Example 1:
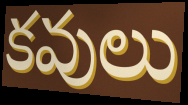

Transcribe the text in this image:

కవులు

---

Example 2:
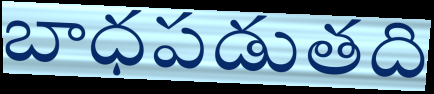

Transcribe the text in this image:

బాధపడుతది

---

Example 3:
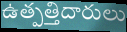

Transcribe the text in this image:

ఉత్పత్తిదారులు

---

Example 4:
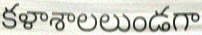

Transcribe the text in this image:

కళాశాలలుండగా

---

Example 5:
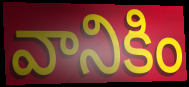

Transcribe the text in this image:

వానికిం